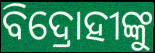
ବିଦ୍ରୋହୀଙ୍କୁ